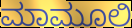
ಮಾಮೂಲಿ